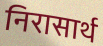
निरासार्थ